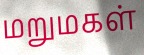
மறுமகள்